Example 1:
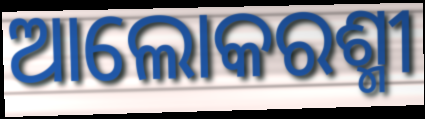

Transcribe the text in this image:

ଆଲୋକରଶ୍ମୀ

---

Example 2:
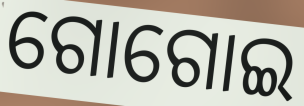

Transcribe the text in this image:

ଗୋଗୋଇ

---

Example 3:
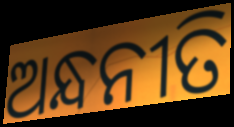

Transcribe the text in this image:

ଅନ୍ଧନୀତି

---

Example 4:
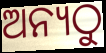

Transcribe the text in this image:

ଅନ୍ୟଠୁ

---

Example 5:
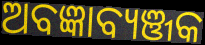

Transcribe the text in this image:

ଅବଜ୍ଞାବ୍ୟଞ୍ଜକ